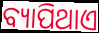
ବ୍ୟାପିଥାଏ